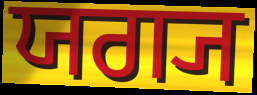
ਯਗ੍ਯ